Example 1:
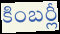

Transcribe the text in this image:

కింబర్లీ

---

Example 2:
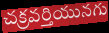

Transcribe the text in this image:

చక్రవర్తియునగు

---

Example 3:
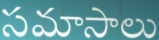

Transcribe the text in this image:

సమాసాలు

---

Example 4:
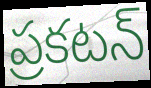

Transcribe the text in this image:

ప్రకటన్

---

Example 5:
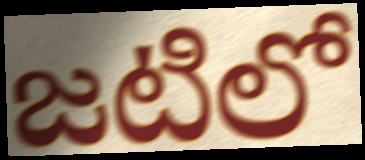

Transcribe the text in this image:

జటిలో